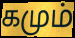
கமும்